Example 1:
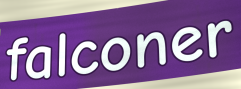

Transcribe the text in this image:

falconer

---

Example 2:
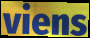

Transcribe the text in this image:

viens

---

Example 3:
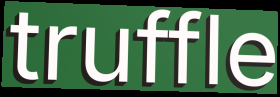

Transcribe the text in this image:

truffle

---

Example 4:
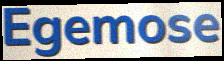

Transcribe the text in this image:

Egemose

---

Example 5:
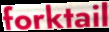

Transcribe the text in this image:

forktail